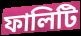
ফালিটি